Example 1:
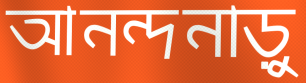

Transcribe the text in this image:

আনন্দনাড়ু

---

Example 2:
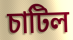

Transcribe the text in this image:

চাটিল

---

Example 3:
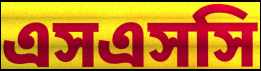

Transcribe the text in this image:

এসএসসি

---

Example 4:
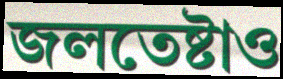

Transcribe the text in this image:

জলতেষ্টাও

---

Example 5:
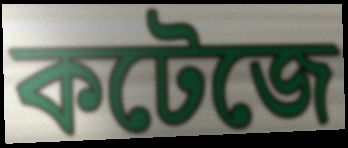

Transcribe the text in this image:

কটেজে